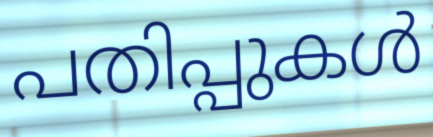
പതിപ്പുകൾ